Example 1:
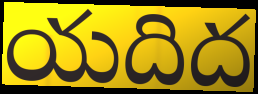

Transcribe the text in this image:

యదిద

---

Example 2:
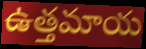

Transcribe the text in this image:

ఉత్తమాయ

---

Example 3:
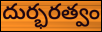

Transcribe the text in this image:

దుర్భరత్వం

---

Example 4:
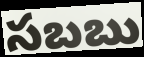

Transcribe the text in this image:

సబబు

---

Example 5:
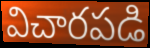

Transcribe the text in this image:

విచారపడి